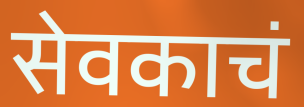
सेवकाचं